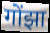
गोंझा